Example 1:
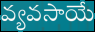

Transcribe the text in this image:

వ్యవసాయే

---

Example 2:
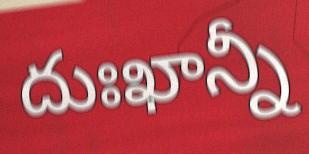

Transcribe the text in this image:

దుఃఖాన్నీ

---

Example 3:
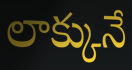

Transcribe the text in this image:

లాక్కునే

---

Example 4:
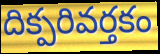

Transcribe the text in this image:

దిక్పరివర్తకం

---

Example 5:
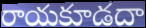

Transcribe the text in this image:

రాయకూడదా